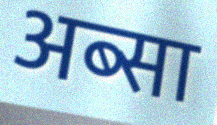
अब्सा